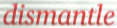
dismantle